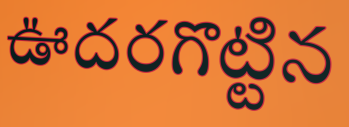
ఊదరగొట్టిన